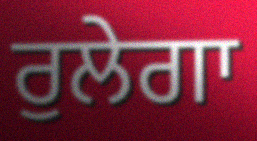
ਰੁਲੇਗਾ